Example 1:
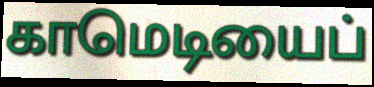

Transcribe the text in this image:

காமெடியைப்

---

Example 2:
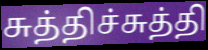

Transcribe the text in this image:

சுத்திச்சுத்தி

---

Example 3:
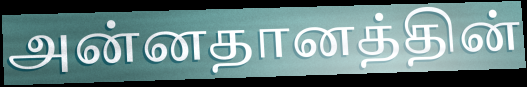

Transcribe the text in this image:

அன்னதானத்தின்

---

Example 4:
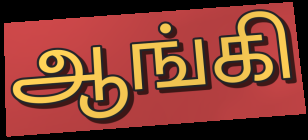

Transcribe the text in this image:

ஆங்கி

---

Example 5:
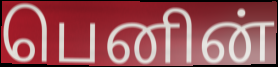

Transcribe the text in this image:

பெனின்